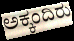
ಅಕ್ಕಂದಿರು